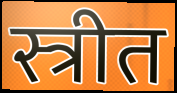
स्त्रीत